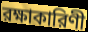
রক্ষাকারিণী